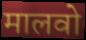
मालवो